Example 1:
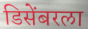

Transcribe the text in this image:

डिसेंबरला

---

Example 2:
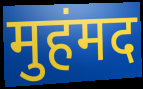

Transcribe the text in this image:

मुहंमद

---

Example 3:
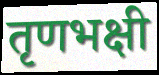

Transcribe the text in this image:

तृणभक्षी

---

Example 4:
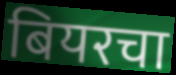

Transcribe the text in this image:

बियरचा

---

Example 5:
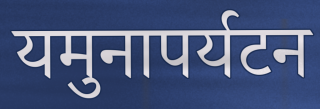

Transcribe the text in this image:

यमुनापर्यटन